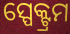
ସ୍ପେକ୍ଟ୍ରମ